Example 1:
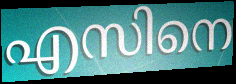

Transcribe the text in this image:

എസിനെ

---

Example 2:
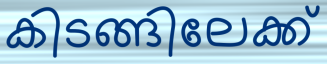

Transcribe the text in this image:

കിടങ്ങിലേക്ക്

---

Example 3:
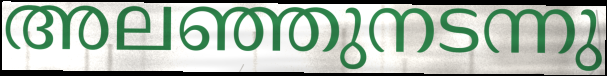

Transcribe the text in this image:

അലഞ്ഞുനടന്നു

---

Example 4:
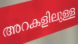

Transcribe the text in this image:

അറകളിലുള്ള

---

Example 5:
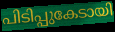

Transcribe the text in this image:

പിടിപ്പുകേടായി